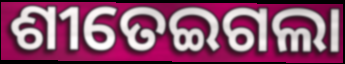
ଶୀତେଇଗଲା